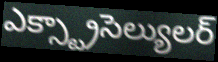
ఎక్స్ట్రాసెల్యులర్